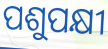
ପଶୁପକ୍ଷୀ